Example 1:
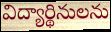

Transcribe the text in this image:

విద్యార్థినులను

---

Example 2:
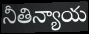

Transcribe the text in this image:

నీతిన్యాయ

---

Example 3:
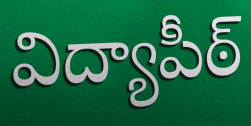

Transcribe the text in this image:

విద్యాపీఠ్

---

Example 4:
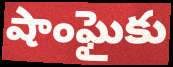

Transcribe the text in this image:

షాంఘైకు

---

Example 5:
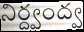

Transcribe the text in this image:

నిర్ద్వంద్వ